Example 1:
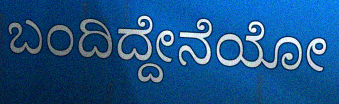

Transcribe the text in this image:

ಬಂದಿದ್ದೇನೆಯೋ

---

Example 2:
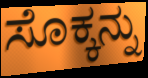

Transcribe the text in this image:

ಸೊಕ್ಕನ್ನು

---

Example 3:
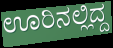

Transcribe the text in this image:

ಊರಿನಲ್ಲಿದ್ದ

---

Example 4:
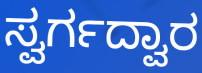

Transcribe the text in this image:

ಸ್ವರ್ಗದ್ವಾರ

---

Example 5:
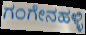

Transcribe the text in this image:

ಗಂಗೇನಹಳ್ಳಿ